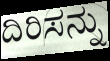
ದಿರಿಸನ್ನು